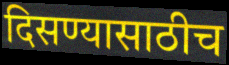
दिसण्यासाठीच